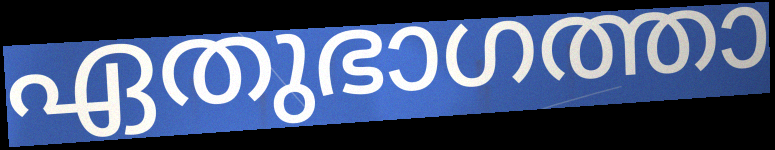
ഏതുഭാഗത്താ